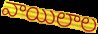
వాయిలాల